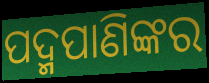
ପଦ୍ମପାଣିଙ୍କର